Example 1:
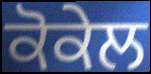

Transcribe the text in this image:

ਕੋਕੇਲ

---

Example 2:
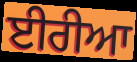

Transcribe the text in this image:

ਈਰੀਆ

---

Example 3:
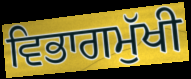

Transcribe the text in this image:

ਵਿਭਾਗਮੁੱਖੀ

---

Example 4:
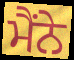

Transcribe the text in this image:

ਮੈਂਨੇ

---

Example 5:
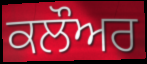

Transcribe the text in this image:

ਕਲੌਅਰ